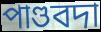
পাণ্ডবদা